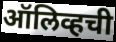
ऑलिव्हची